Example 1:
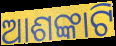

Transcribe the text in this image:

ଆଶଙ୍କାଟି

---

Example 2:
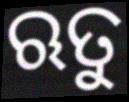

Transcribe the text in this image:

ଋତୁ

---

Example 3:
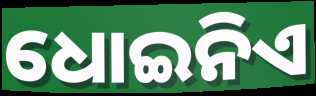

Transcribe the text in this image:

ଧୋଇନିଏ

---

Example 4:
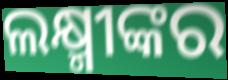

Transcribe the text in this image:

ଲକ୍ଷ୍ମୀଙ୍କର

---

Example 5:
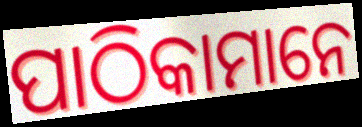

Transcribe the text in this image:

ପାଠିକାମାନେ